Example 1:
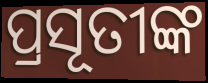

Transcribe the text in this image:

ପ୍ରସୂତୀଙ୍କ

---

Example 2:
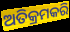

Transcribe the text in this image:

ଅତିକ୍ରମକରି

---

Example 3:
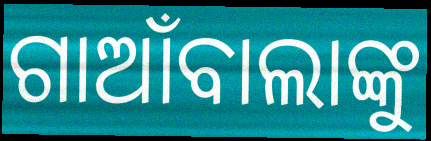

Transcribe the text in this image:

ଗାଆଁବାଲାଙ୍କୁ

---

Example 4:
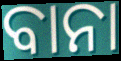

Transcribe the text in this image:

ବାନା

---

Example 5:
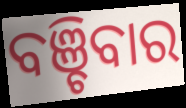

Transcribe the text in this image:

ବଞ୍ଚିବାର